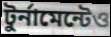
টুর্নামেন্টেও